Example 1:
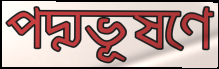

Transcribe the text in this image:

পদ্মভূষণে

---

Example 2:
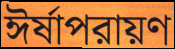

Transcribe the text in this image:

ঈর্ষাপরায়ণ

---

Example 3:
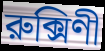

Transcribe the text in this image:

রুক্সিণী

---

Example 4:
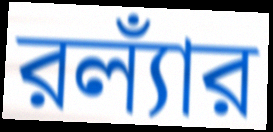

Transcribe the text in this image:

রল্যাঁর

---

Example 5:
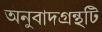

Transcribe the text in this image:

অনুবাদগ্রন্থটি